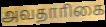
அவதாரிகை